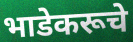
भाडेकरूचे